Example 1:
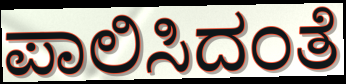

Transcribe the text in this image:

ಪಾಲಿಸಿದಂತೆ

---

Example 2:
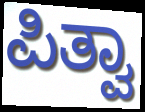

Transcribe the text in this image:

ಪಿತ್ವಾ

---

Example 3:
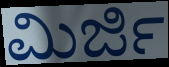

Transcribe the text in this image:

ಮಿರ್ಜಿ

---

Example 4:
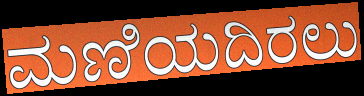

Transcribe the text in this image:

ಮಣಿಯದಿರಲು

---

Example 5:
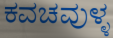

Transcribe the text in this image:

ಕವಚವುಳ್ಳ